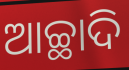
ଆଚ୍ଛାଦି